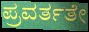
ಪ್ರವರ್ತತೇ